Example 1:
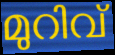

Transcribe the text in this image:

മുറിവ്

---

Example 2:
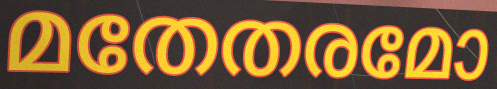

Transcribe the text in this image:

മതേതരമോ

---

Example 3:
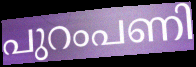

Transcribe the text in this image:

പുറംപണി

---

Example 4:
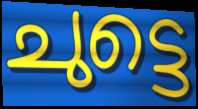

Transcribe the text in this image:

ചുട്ടെ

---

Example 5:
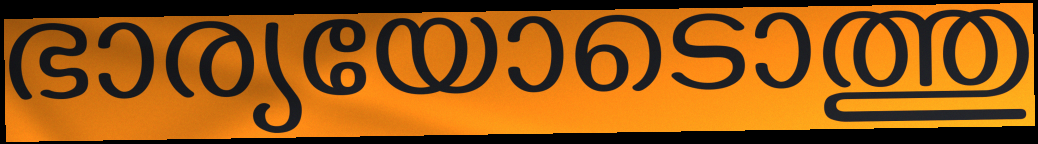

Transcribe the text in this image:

ഭാര്യയോടൊത്തു